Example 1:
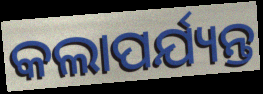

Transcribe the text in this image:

କଲାପର୍ଯ୍ୟନ୍ତ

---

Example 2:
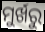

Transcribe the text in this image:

ମୁର୍ଖରୁ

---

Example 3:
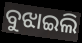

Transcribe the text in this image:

ବୁଝାଇଲି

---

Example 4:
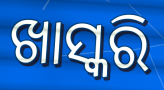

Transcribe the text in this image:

ଖାସ୍କରି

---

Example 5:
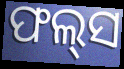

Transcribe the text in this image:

ଫଲ୍‌ସ